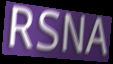
RSNA